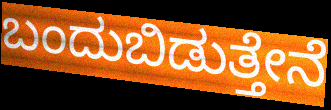
ಬಂದುಬಿಡುತ್ತೇನೆ